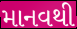
માનવથી